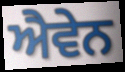
ਐਵੇਨ